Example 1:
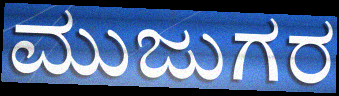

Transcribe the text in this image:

ಮುಜುಗರ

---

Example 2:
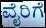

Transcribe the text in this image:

ವೈರಿಗೆ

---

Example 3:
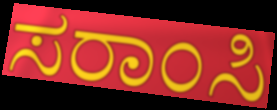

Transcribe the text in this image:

ಸರಾಂಸಿ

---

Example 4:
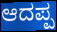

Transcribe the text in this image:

ಆದಪ್ಪ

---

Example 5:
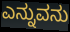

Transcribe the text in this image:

ಎನ್ನುವನು